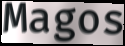
Magos